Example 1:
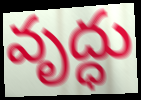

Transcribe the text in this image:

వృద్ధు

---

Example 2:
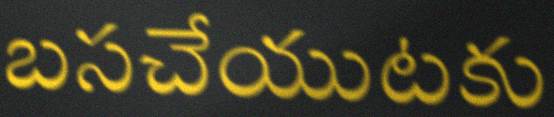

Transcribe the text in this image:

బసచేయుటకు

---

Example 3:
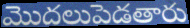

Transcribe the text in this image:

మొదలుపెడతారు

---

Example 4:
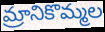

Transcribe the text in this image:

మ్రానికొమ్మల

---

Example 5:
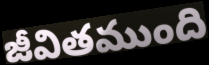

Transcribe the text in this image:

జీవితముంది